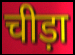
चीड़ा